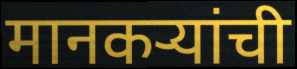
मानकऱ्यांची